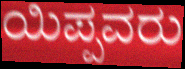
ಯಿಪ್ಪವರು